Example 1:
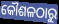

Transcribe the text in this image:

କୌଶଳଠାରୁ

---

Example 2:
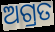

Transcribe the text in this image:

ଅଗ୍ରତ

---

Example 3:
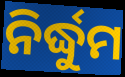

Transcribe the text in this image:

ନିର୍ଦ୍ଧୁମ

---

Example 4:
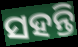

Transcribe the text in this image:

ସହନ୍ତି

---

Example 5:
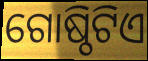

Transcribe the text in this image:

ଗୋଷ୍ଠିଟିଏ